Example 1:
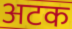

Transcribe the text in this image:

अटक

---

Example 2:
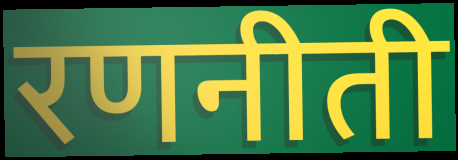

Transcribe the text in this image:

रणनीती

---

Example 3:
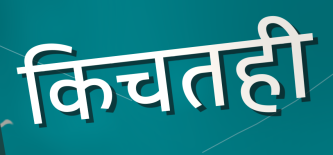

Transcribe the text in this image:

किचतही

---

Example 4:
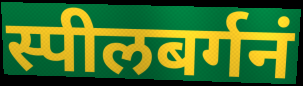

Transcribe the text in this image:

स्पीलबर्गनं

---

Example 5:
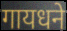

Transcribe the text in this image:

गायधने